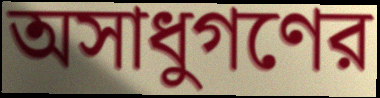
অসাধুগণের